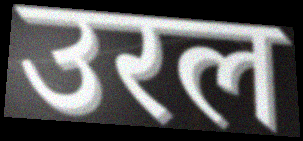
उरल